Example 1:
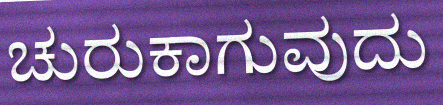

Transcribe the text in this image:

ಚುರುಕಾಗುವುದು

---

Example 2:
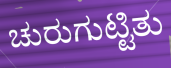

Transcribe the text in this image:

ಚುರುಗುಟ್ಟಿತು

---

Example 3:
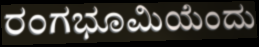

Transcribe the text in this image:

ರಂಗಭೂಮಿಯೆಂದು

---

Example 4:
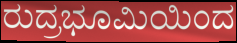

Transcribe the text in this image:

ರುದ್ರಭೂಮಿಯಿಂದ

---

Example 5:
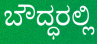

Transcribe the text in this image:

ಬೌದ್ಧರಲ್ಲಿ